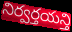
నిర్వర్తయన్తి